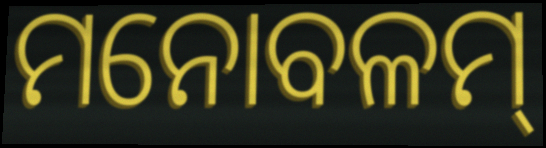
ମନୋବଳମ୍